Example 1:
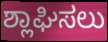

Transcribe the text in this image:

ಶ್ಲಾಘಿಸಲು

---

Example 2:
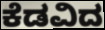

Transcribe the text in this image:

ಕೆಡವಿದ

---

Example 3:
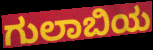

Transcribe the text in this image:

ಗುಲಾಬಿಯ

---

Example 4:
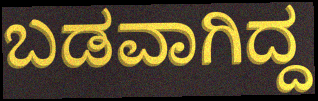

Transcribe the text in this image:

ಬಡವಾಗಿದ್ದ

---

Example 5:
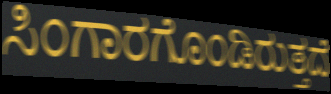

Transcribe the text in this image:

ಸಿಂಗಾರಗೊಂಡಿರುತ್ತದೆ